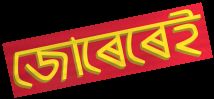
জোৰেৰেই